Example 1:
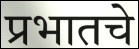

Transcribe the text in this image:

प्रभातचे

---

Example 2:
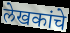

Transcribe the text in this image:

लेखकांचे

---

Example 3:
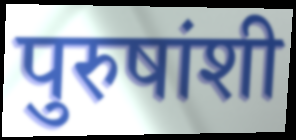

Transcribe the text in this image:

पुरुषांशी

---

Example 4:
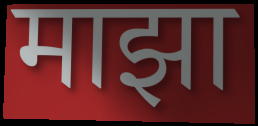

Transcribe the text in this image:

माझा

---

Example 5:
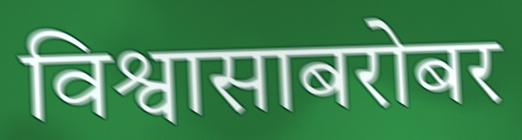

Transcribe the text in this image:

विश्वासाबरोबर